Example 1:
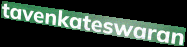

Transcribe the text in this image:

tavenkateswaran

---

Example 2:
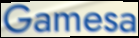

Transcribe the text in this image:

Gamesa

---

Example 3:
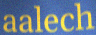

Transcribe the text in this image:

aalech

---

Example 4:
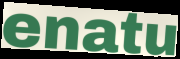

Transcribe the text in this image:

enatu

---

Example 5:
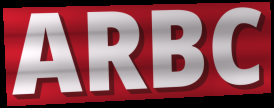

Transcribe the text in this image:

ARBC